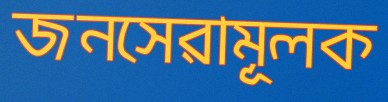
জনসেৱামূলক